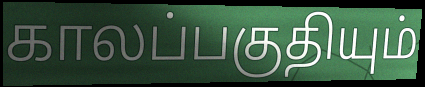
காலப்பகுதியும்